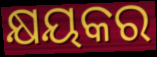
କ୍ଷୟକର